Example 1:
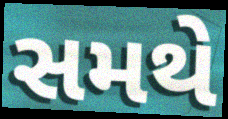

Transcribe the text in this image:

સમથે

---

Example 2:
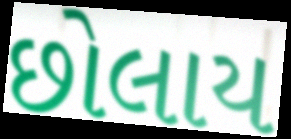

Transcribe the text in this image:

છોલાય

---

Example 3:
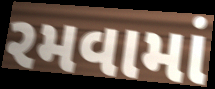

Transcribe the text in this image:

રમવામાં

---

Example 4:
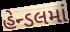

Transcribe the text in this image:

હેન્ડલમાં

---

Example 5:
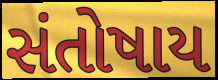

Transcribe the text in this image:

સંતોષાય